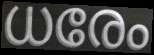
ധരേം